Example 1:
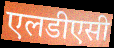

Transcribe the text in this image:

एलडीएसी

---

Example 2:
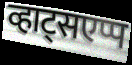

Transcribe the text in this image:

व्हाट्सएप्प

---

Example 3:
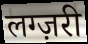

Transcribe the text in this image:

लग्ज़री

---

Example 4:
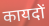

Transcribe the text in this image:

कायदों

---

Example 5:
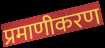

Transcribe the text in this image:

प्रमाणीकरण